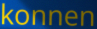
konnen